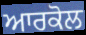
ਆਰਕੋਲ